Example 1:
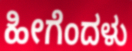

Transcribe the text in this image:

ಹೀಗೆಂದಳು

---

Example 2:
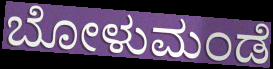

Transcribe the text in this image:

ಬೋಳುಮಂಡೆ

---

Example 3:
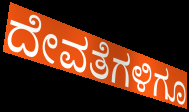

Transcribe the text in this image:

ದೇವತೆಗಳಿಗೂ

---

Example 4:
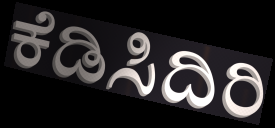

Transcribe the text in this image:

ಕೆಡಿಸಿದಿರಿ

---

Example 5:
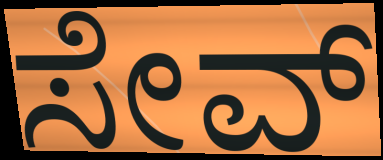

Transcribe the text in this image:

ಸೇವ್